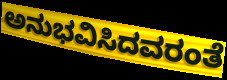
ಅನುಭವಿಸಿದವರಂತೆ